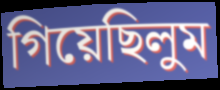
গিয়েছিলুম